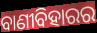
ବାଣୀବିହାରର